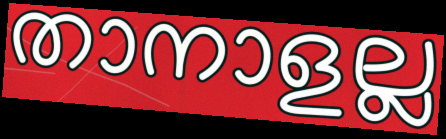
താനാളല്ല